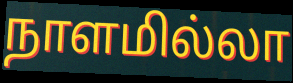
நாளமில்லா